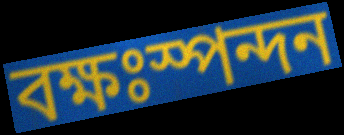
বক্ষঃস্পন্দন